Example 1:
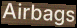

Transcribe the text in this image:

Airbags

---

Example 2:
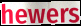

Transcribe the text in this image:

hewers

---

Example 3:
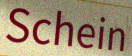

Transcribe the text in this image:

Schein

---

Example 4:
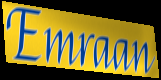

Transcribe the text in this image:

Emraan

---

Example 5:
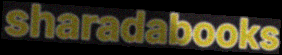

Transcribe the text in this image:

sharadabooks